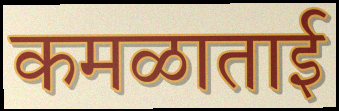
कमळाताई